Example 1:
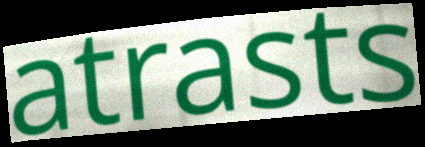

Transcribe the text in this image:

atrasts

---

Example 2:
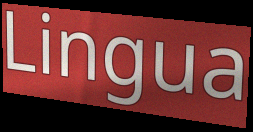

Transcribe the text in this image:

Lingua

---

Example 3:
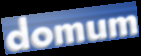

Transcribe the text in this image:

domum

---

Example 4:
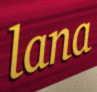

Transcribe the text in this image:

lana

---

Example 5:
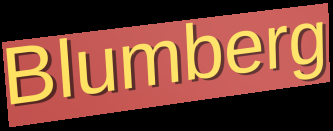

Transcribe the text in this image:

Blumberg